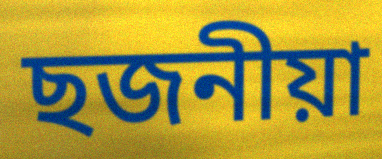
ছজনীয়া